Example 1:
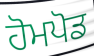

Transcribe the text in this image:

ਹੋਮਪੋਡ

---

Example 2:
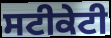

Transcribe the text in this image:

ਸਟੀਕੇਟੀ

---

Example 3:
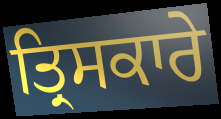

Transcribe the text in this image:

ਤ੍ਰਿਸਕਾਰੇ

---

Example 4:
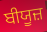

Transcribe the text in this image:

ਬੀਯੂਜ਼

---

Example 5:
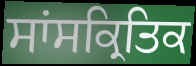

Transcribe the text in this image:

ਸਾਂਸਕ੍ਰਿਤਿਕ